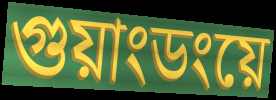
গুয়াংডংয়ে